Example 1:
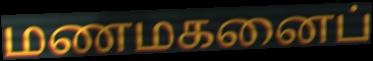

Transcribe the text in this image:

மணமகனைப்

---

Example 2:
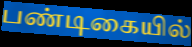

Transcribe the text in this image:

பண்டிகையில்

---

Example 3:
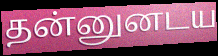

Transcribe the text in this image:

தன்னுனடய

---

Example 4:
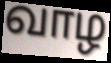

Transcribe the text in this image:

வாழ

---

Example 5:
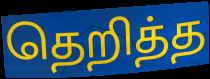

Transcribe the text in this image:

தெறித்த